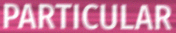
PARTICULAR